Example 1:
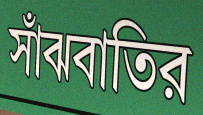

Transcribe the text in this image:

সাঁঝবাতির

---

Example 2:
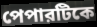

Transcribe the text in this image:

পেপারটিকে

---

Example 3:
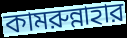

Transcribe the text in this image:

কামরুন্নাহার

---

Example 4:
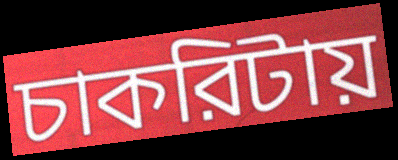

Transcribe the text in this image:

চাকরিটায়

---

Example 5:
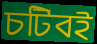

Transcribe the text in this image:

চটিবই